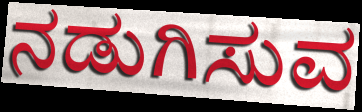
ನಡುಗಿಸುವ